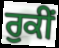
ਰੁਕੀਂ